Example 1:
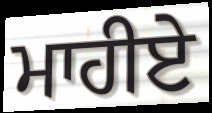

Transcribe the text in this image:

ਮਾਹੀਏ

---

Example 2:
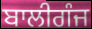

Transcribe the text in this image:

ਬਾਲੀਗੰਜ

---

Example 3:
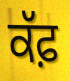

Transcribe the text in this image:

ਕੱਫ਼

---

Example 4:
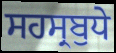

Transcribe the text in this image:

ਸਹਸ੍ਰਬੁਧੇ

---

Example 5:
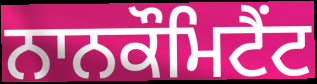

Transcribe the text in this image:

ਨਾਨਕੌਮਿਟੈਂਟ